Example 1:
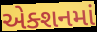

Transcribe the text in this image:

એક્શનમાં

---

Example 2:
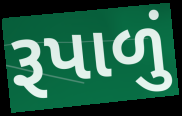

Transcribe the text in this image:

રૂપાળું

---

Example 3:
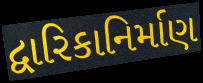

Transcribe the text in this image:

દ્વારિકાનિર્માણ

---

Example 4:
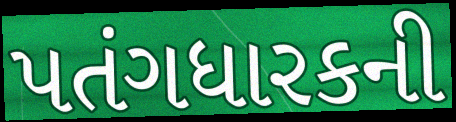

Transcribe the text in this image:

પતંગધારકની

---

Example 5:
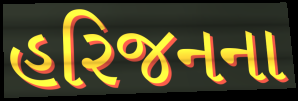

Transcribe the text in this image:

હરિજનના